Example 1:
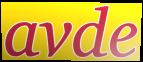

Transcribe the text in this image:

avde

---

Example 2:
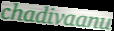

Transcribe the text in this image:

chadivaanu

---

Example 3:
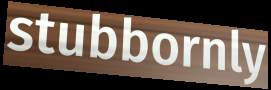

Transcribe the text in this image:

stubbornly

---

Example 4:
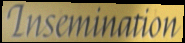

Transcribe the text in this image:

Insemination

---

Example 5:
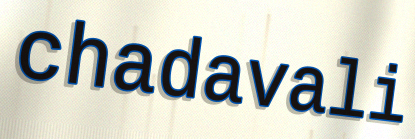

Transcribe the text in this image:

chadavali